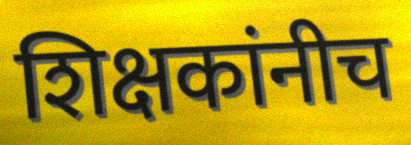
शिक्षकांनीच